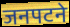
जनपटने